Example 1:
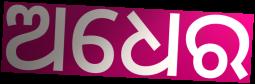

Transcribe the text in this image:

ଅଧେର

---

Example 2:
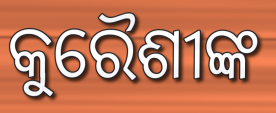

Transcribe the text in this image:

କୁରୈଶୀଙ୍କ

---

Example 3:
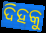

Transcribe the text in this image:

ଦିହକୁ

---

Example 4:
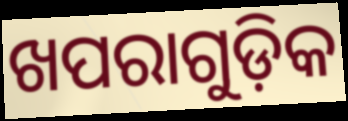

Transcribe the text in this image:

ଖପରାଗୁଡ଼ିକ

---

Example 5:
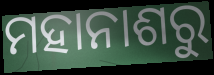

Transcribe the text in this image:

ମହାନାଶରୁ